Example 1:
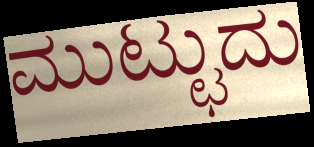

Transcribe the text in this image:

ಮುಟ್ಟುದು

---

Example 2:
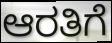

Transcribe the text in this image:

ಆರತಿಗೆ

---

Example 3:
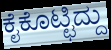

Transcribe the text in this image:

ಕೈಕೊಟ್ಟಿದ್ದು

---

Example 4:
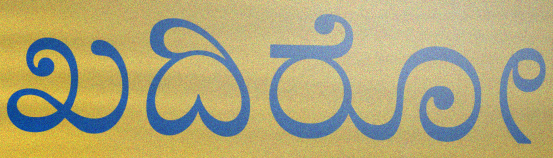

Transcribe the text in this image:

ಖದಿರೋ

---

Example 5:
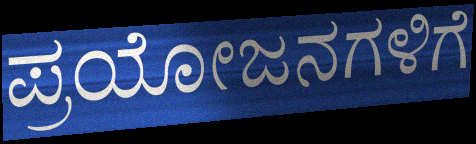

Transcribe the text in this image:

ಪ್ರಯೋಜನಗಳಿಗೆ